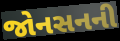
જોનસનની